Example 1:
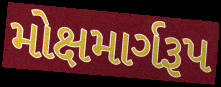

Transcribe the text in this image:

મોક્ષમાર્ગરૂપ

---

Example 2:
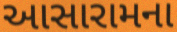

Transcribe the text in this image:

આસારામના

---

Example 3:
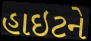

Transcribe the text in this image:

હાઇટને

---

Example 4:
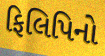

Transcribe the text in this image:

ફિલિપિનો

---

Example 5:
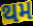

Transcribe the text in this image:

થમ